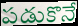
పడుకొనే